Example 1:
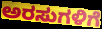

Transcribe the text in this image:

ಅರಸುಗಳಿಗೆ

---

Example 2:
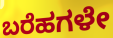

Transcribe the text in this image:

ಬರೆಹಗಳೇ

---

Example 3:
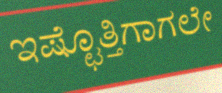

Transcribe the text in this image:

ಇಷ್ಟೊತ್ತಿಗಾಗಲೇ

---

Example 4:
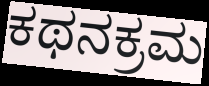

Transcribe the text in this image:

ಕಥನಕ್ರಮ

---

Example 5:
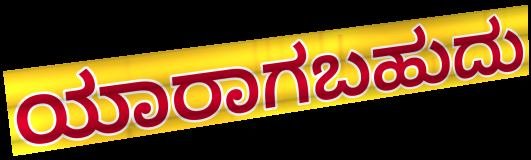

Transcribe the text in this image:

ಯಾರಾಗಬಹುದು